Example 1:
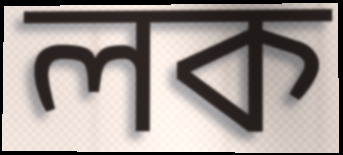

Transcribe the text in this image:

লক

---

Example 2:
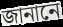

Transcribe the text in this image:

জানানে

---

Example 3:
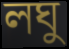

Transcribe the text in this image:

লঘু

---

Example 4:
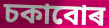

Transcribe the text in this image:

চকাবোৰ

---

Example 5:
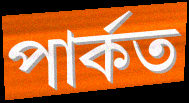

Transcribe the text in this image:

পাৰ্কত